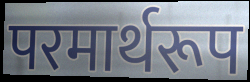
परमार्थरूप